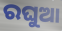
ରଘୁଆ